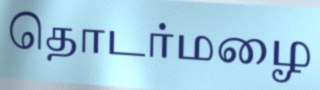
தொடர்மழை